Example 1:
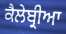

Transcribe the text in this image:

ਕੈਲੇਬ੍ਰੀਆ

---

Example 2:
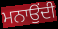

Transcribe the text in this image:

ਮਨਾਉਂਦੀ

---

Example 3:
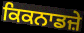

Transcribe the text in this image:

ਕਿਕਨਾਡਜ਼ੇ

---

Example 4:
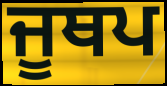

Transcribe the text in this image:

ਜੂਥਪ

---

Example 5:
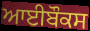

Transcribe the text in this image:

ਆਈਬੌਕਸ